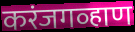
करंजगव्हाण